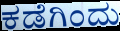
ಕಡೆಗಿಂದು